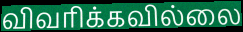
விவரிக்கவில்லை